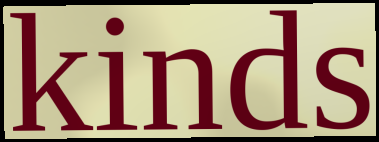
kinds